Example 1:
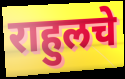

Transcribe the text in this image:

राहुलचे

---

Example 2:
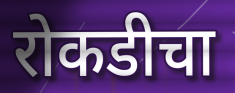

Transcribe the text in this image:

रोकडीचा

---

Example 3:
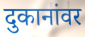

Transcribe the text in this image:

दुकानांवर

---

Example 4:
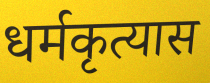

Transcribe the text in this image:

धर्मकृत्यास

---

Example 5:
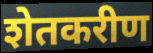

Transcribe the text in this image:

शेतकरीण